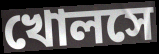
খোলসে